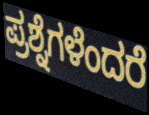
ಪ್ರಶ್ನೆಗಳೆಂದರೆ